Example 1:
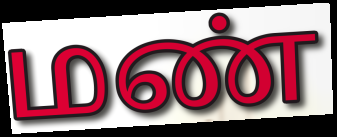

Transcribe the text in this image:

மண்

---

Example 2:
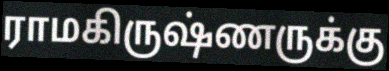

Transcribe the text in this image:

ராமகிருஷ்ணருக்கு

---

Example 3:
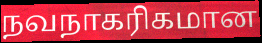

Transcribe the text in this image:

நவநாகரிகமான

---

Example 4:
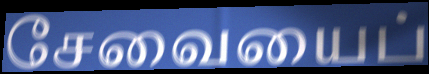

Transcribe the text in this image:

சேவையைப்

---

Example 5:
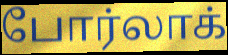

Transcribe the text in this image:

போர்லாக்